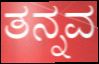
ತನ್ನವ